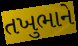
તખુભાને